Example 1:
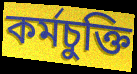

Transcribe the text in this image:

কর্মচুক্তি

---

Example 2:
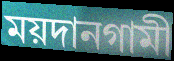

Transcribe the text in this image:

ময়দানগামী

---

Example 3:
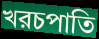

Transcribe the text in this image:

খরচপাতি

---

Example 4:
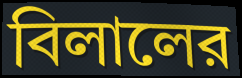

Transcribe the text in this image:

বিলালের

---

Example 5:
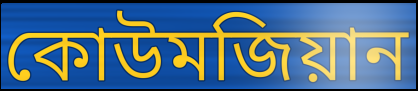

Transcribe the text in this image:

কোউমজিয়ান